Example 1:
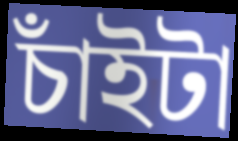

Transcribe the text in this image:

চাঁইটা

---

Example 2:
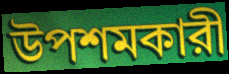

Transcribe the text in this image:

উপশমকারী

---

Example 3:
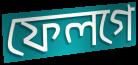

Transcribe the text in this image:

ফেলগে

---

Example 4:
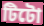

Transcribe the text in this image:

টিটো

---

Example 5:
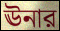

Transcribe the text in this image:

ঊনার